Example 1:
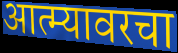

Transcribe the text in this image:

आत्म्यावरचा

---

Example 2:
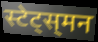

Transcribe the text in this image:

स्टेट्स्‌मन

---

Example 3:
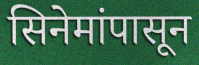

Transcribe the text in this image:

सिनेमांपासून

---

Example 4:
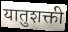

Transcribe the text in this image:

यातुशक्ती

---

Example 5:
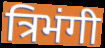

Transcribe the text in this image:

त्रिभंगी